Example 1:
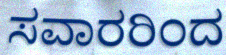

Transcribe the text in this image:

ಸವಾರರಿಂದ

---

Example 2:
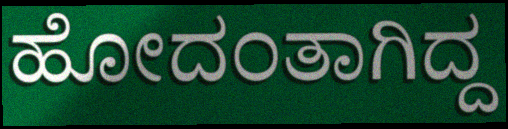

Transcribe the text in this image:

ಹೋದಂತಾಗಿದ್ದ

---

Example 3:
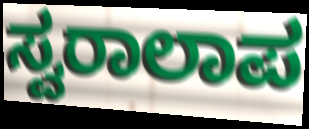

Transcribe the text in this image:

ಸ್ವರಾಲಾಪ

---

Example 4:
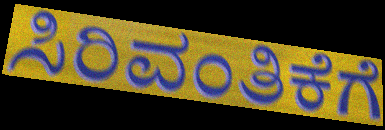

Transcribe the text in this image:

ಸಿರಿವಂತಿಕೆಗೆ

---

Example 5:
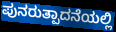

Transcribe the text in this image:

ಪುನರುತ್ಪಾದನೆಯಲ್ಲಿ